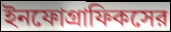
ইনফোগ্রাফিকসের